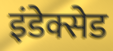
इंडेक्सेड